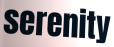
serenity